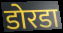
डोरडा